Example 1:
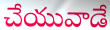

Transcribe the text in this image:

చేయువాడే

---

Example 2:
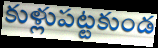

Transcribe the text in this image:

కుళ్లుపట్టకుండ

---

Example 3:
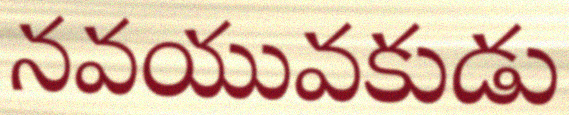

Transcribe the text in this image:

నవయువకుడు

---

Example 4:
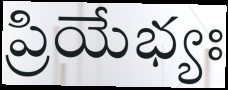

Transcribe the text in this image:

ప్రియేభ్యః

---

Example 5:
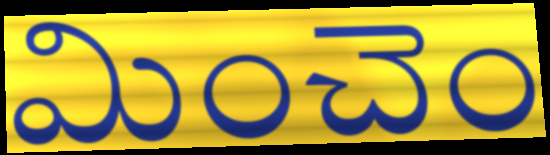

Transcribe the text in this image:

మించెం